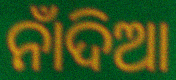
ନାଁଦିଆ